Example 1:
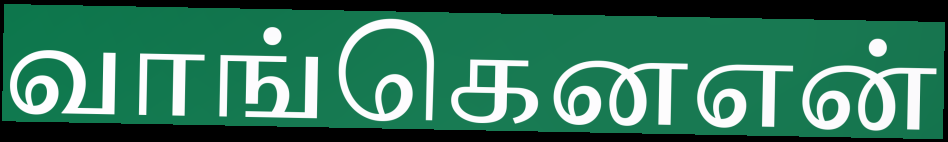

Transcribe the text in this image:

வாங்கெனஎன்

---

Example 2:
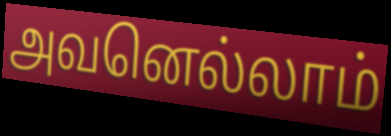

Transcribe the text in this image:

அவனெல்லாம்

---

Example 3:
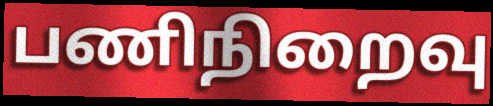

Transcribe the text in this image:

பணிநிறைவு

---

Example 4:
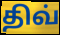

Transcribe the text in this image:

திவ்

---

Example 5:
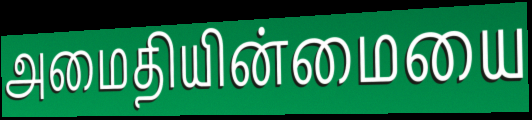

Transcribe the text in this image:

அமைதியின்மையை